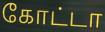
கோட்டா